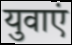
युवाएं